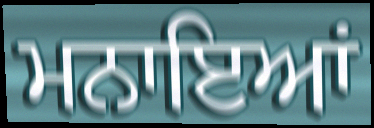
ਮਨਾਇਆਂ